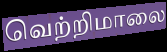
வெற்றிமாலை